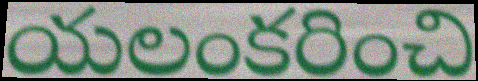
యలంకరించి